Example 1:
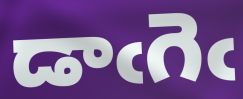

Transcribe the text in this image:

డాఁగెఁ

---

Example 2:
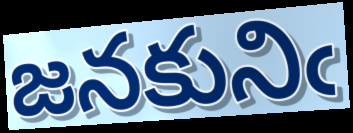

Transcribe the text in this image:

జనకునిఁ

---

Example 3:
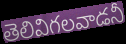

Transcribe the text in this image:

తెలివిగలవాడనీ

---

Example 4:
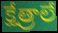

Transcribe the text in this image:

క్షేత్రాలే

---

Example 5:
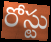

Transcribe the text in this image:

రోస్టు